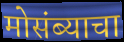
मोसंब्याचा